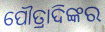
ପୌତ୍ରାଦିଙ୍କର